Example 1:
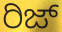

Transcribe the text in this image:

ರಿಜ್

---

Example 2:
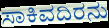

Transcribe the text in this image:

ಸಾಕಿವದಿರನು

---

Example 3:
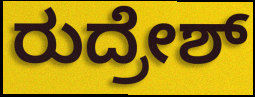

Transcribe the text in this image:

ರುದ್ರೇಶ್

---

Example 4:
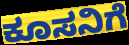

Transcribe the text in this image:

ಕೂಸನಿಗೆ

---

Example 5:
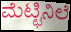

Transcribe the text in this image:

ಮೆಟ್ಟಿನಿಲೆ